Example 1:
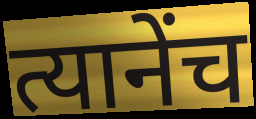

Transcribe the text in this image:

त्यानेंच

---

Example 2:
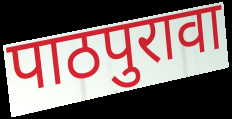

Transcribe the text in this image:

पाठपुरावा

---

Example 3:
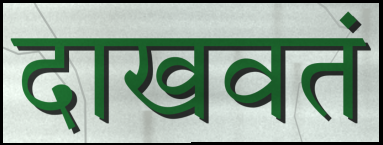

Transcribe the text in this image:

दाखवतं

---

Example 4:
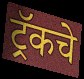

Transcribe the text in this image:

ट्रॅकचे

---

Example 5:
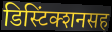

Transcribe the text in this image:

डिस्टिंक्शनसह